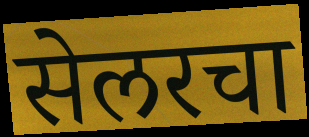
सेलरचा